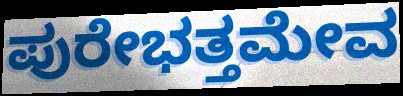
ಪುರೇಭತ್ತಮೇವ